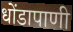
धोंडापाणी